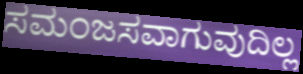
ಸಮಂಜಸವಾಗುವುದಿಲ್ಲ